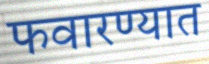
फवारण्यात